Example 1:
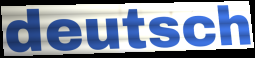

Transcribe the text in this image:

deutsch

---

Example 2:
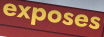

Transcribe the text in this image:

exposes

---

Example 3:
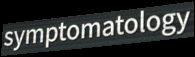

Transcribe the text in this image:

symptomatology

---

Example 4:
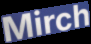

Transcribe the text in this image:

Mirch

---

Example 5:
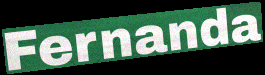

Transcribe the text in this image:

Fernanda